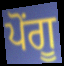
ਪੋਂਗੂ